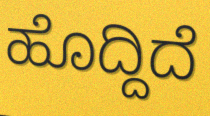
ಹೊದ್ದಿದೆ